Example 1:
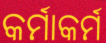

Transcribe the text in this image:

କର୍ମାକର୍ମ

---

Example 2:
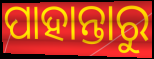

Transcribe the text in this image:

ପାହାନ୍ତାରୁ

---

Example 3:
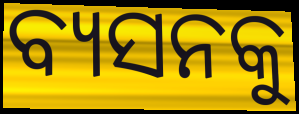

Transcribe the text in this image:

ବ୍ୟସନକୁ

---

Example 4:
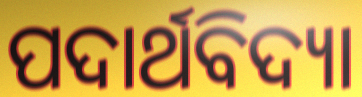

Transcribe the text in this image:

ପଦାର୍ଥବିଦ୍ୟା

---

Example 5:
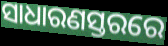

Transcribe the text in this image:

ସାଧାରଣସ୍ତରରେ